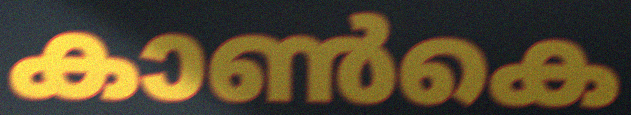
കാൺകെ